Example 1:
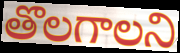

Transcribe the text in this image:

తొలగాలని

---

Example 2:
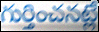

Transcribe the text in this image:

గుర్తించనట్లే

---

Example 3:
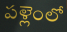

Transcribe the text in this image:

పళ్లెంలో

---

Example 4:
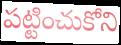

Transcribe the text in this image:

పట్టించుకోని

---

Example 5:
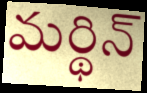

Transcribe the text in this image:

మర్థిన్